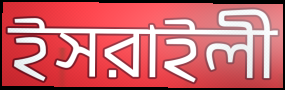
ইসরাইলী